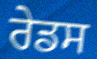
ਰੇਡਸ